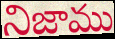
నిజాము